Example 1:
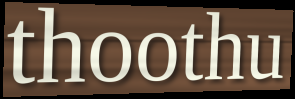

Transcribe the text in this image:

thoothu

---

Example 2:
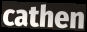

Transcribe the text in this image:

cathen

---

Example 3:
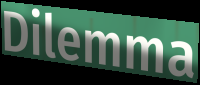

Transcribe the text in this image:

Dilemma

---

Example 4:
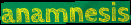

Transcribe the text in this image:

anamnesis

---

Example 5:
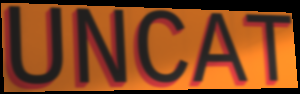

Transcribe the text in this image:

UNCAT